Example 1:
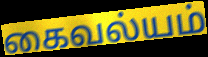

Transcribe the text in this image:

கைவல்யம்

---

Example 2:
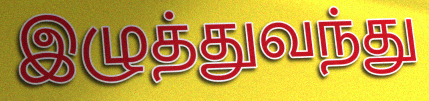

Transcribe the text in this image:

இழுத்துவந்து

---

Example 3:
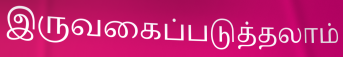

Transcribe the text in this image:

இருவகைப்படுத்தலாம்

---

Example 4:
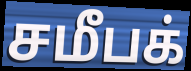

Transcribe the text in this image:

சமீபக்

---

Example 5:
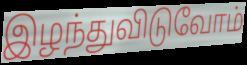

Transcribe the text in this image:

இழந்துவிடுவோம்